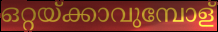
ഒറ്റയ്ക്കാവുമ്പോള്